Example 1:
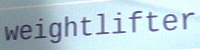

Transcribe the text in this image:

weightlifter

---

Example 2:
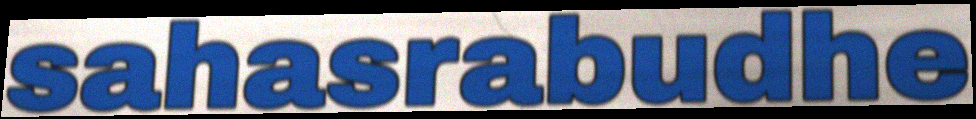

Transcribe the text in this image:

sahasrabudhe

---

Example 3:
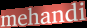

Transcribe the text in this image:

mehandi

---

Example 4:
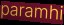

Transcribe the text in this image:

paramhi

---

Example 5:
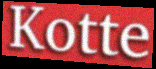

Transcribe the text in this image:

Kotte